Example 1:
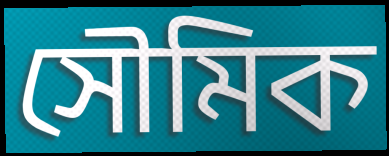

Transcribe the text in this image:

সৌমিক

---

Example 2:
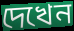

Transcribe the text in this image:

দেখেন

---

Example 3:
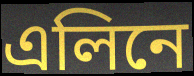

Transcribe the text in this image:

এলিনে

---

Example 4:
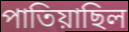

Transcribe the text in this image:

পাতিয়াছিল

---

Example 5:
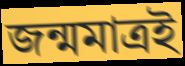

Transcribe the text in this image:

জন্মমাত্রই